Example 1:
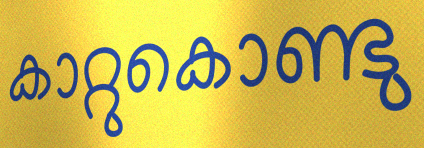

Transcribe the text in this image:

കാറ്റുകൊണ്ടു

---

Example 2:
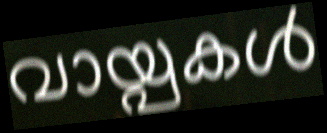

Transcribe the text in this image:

വായ്പകൾ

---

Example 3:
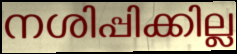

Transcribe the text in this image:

നശിപ്പിക്കില്ല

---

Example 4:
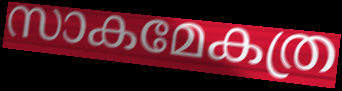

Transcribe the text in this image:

സാകമേകത്ര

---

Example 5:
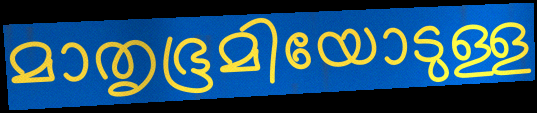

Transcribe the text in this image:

മാതൃഭൂമിയോടുള്ള